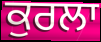
ਕੁਰਲਾ